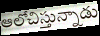
ఆలోచిస్తున్నాడు